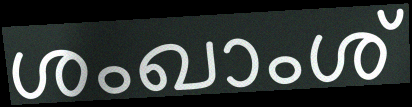
ശംഖാംശ്